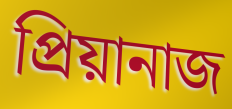
প্রিয়ানাজ